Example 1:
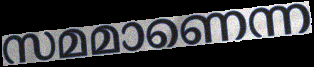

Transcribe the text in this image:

സമമാണെന്ന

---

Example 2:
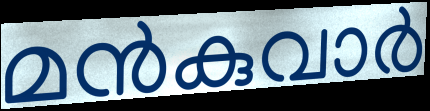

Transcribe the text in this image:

മൻകുവാർ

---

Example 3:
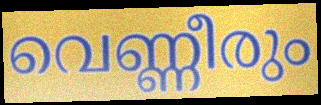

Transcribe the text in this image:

വെണ്ണീരും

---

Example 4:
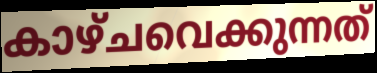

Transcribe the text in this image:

കാഴ്ചവെക്കുന്നത്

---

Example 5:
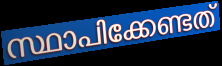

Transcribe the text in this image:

സ്ഥാപിക്കേണ്ടത്